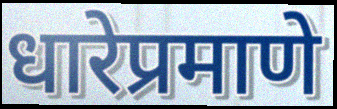
धारेप्रमाणे